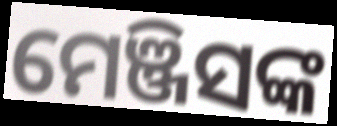
ମେଞ୍ଜିସଙ୍କ